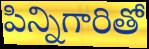
పిన్నిగారితో